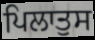
ਪਿਲਾਤੁਸ